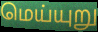
மெய்யுறு